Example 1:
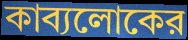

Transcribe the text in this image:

কাব্যলোকের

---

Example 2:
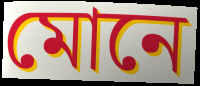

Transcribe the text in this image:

মোনে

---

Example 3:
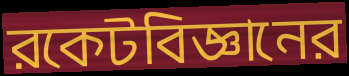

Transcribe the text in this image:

রকেটবিজ্ঞানের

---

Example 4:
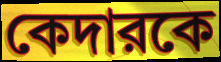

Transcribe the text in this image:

কেদারকে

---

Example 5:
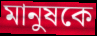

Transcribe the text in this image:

মানুষকে